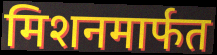
मिशनमार्फत